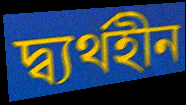
দ্ব্যৰ্থহীন